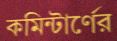
কমিন্টার্ণের